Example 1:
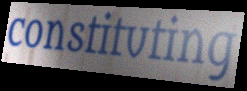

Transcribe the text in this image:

constituting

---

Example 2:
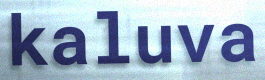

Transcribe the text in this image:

kaluva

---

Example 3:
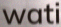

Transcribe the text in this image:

wati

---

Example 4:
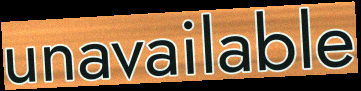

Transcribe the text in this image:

unavailable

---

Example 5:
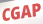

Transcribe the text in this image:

CGAP